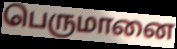
பெருமானை